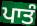
ਪਾਤੰ